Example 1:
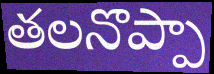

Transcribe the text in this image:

తలనొప్పా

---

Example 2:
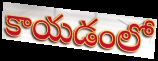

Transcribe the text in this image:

కాయడంలో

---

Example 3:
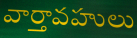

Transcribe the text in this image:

వార్తావహులు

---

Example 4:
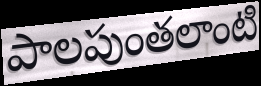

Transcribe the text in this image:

పాలపుంతలాంటి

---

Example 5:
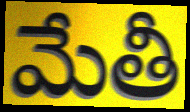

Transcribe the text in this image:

మేతీ